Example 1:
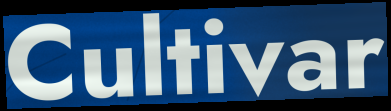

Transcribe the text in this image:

Cultivar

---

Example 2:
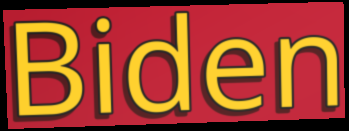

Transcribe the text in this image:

Biden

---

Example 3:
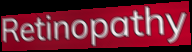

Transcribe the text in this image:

Retinopathy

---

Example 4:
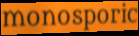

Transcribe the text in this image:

monosporic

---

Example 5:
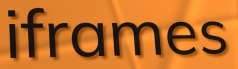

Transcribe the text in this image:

iframes